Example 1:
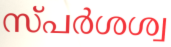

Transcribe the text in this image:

സ്പർശശ്വ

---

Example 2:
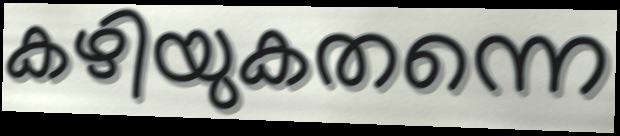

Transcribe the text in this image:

കഴിയുകതന്നെ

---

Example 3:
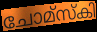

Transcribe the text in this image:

ചോമ്സ്കി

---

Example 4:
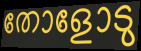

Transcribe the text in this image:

തോളോടു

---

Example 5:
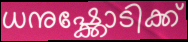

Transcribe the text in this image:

ധനുഷ്ക്കോടിക്ക്